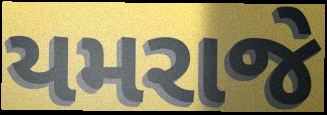
યમરાજે